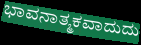
ಭಾವನಾತ್ಮಕವಾದುದು